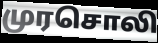
முரசொலி